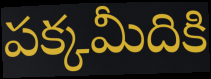
పక్కమీదికి